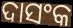
ଦାସଂକ